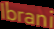
Ibrani